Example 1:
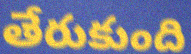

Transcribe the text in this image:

తేరుకుంది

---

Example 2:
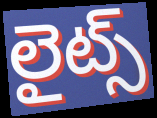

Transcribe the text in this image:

లైట్స్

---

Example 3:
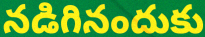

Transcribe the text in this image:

నడిగినందుకు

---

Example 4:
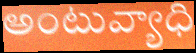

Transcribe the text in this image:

అంటువ్యాధి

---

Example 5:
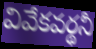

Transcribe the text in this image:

వివేకవర్థనీ